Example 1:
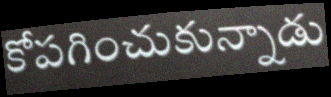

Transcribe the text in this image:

కోపగించుకున్నాడు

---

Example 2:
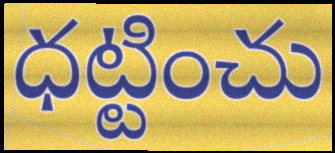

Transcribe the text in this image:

ధట్టించు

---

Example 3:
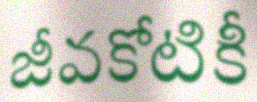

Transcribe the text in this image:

జీవకోటికీ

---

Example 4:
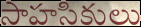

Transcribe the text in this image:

సాహసికులు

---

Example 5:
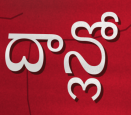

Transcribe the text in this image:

దాన్లో